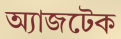
অ্যাজটেক